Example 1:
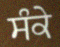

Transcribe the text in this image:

ਸੰਕੇ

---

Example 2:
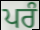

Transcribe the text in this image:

ਪਰੰ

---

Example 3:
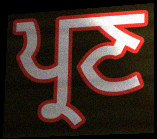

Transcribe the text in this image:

ਪ੍ਰਣ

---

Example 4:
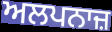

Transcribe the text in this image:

ਅਲਪਨਾਜ਼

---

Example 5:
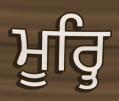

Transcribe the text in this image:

ਮੂਰ੍ਤਿ